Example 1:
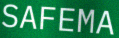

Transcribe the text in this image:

SAFEMA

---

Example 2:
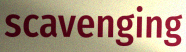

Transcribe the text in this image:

scavenging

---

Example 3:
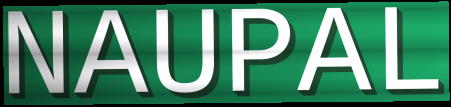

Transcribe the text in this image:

NAUPAL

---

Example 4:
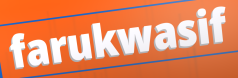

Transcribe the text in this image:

farukwasif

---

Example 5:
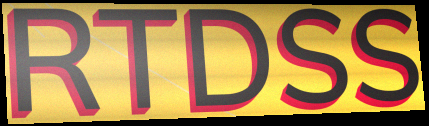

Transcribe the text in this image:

RTDSS